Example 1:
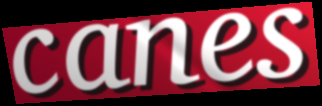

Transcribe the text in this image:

canes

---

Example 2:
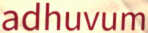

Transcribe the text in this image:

adhuvum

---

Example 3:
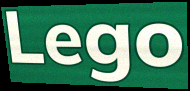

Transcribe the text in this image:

Lego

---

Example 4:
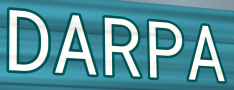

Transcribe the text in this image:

DARPA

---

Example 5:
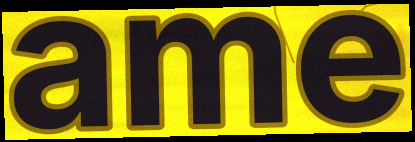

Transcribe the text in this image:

ame